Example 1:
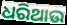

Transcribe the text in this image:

ଧରିଥାଉ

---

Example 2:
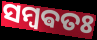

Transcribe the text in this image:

ସମ୍ବଵତଃ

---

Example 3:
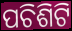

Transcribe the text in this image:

ପଚିଶିଟି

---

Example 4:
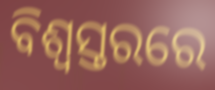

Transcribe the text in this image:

ବିଶ୍ୱସ୍ତରରେ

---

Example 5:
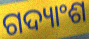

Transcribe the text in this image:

ଗଦ୍ୟାଂଶ